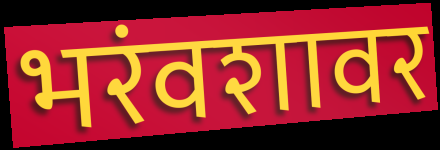
भरंवशावर